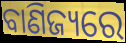
ବାଣିଜ୍ୟରେ